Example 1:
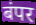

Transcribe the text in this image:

बंपर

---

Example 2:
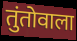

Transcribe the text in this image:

तुंतोवाला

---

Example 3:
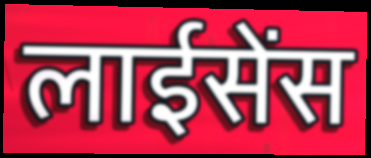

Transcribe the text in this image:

लाईसेंस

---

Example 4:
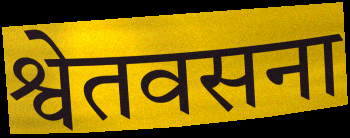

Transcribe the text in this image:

श्वेतवसना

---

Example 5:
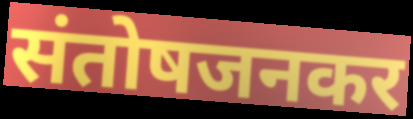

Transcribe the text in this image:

संतोषजनकर